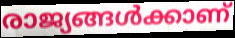
രാജ്യങ്ങൾക്കാണ്